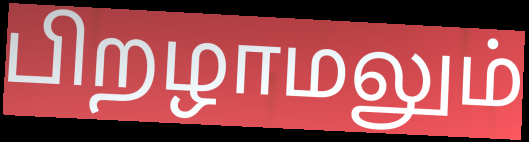
பிறழாமலும்